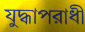
যুদ্ধাপরাধী